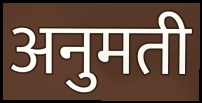
अनुमती